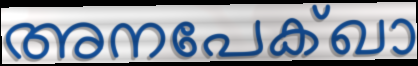
അനപേക്ഖാ